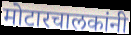
मोटारचालकांनी